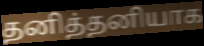
தனித்தனியாக